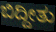
ಬಿದ್ದೀತು